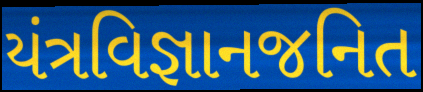
યંત્રવિજ્ઞાનજનિત